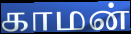
காமன்